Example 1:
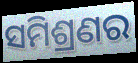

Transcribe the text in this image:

ସମିଶ୍ରଣର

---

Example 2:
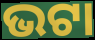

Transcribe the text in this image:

ଭଟା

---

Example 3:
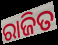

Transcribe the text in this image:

ରାଜିତ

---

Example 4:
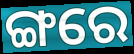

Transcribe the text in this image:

ଙ୍ଗରେ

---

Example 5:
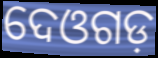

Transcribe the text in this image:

ଦେଓଗଡ଼